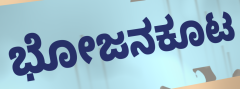
ಭೋಜನಕೂಟ